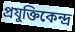
প্রযুক্তিকেন্দ্র